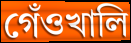
গেঁওখালি